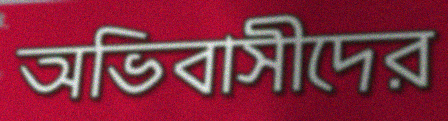
অভিবাসীদের